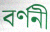
বৰ্ণনী